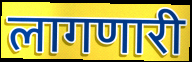
लागणारी